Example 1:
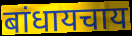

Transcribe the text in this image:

बांधायचाय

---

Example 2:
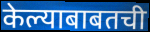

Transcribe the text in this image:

केल्याबाबतची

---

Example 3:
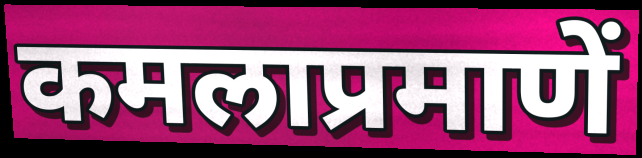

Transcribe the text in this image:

कमलाप्रमाणें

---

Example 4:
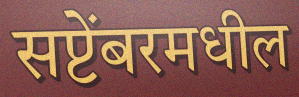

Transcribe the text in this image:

सप्टेंबरमधील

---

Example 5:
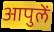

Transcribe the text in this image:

आपुलें